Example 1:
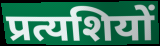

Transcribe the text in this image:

प्रत्यशियों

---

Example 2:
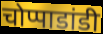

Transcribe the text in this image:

चोप्पाडांडी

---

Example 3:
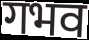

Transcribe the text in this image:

गभव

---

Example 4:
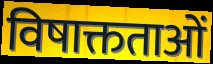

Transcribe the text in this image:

विषाक्तताओं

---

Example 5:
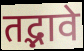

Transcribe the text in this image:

तद्भावे